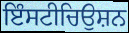
ਇੰਸਟੀਚਿਉਸ਼ਨ